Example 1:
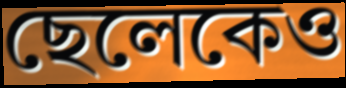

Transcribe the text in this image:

ছেলেকেও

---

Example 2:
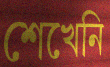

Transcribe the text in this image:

শেখেনি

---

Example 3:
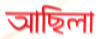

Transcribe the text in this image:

আছিলা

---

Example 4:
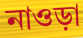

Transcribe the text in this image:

নাওড়া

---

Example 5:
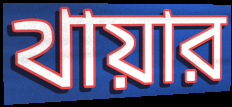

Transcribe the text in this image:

থায়ার